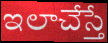
ఇలాచేస్తే